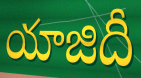
యాజిదీ